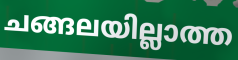
ചങ്ങലയില്ലാത്ത